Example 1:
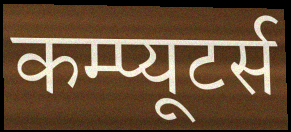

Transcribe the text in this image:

कम्प्यूटर्स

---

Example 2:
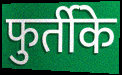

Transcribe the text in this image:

फुर्तीके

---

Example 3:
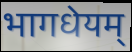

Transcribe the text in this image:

भागधेयम्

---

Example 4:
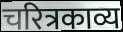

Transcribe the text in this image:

चरित्रकाव्य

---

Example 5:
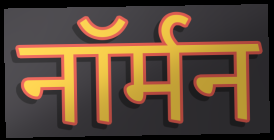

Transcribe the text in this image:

नॉर्मन